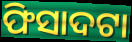
ଫିସାଦଟା